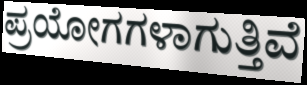
ಪ್ರಯೋಗಗಳಾಗುತ್ತಿವೆ